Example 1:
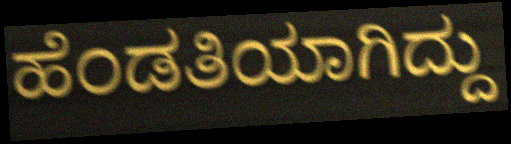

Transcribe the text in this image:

ಹೆಂಡತಿಯಾಗಿದ್ದು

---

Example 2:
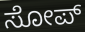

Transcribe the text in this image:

ಸೋಪ್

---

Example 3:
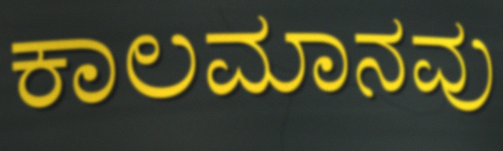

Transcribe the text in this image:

ಕಾಲಮಾನವು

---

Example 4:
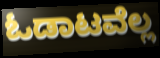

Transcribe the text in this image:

ಓಡಾಟವೆಲ್ಲ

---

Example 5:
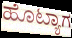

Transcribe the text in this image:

ಹೊಟ್ಯಾಗ